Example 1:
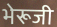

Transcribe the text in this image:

भेरूजी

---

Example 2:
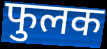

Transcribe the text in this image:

फुलक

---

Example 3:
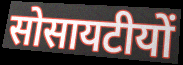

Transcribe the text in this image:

सोसायटीयों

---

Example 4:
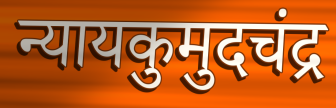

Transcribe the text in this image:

न्यायकुमुदचंद्र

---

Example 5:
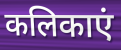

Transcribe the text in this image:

कलिकाएं